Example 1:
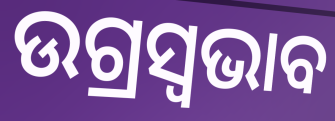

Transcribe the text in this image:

ଉଗ୍ରସ୍ୱଭାବ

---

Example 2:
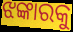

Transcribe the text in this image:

ଝଙ୍କାରକୁ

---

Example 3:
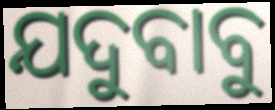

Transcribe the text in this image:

ଯଦୁବାବୁ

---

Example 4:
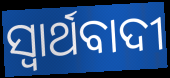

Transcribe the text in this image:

ସ୍ୱାର୍ଥବାଦୀ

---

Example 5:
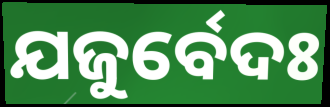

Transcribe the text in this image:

ଯଜୁର୍ବେଦଃ